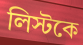
লিস্টকে